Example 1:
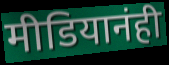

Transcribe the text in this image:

मीडियानंही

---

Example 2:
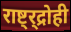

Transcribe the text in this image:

राष्ट्र्द्रोही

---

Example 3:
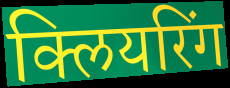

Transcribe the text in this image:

क्लियरिंग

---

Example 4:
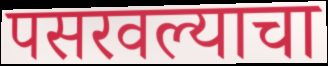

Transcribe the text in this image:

पसरवल्याचा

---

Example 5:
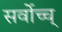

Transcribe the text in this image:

सर्वोच्च्